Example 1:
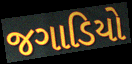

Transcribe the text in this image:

જગાડિયો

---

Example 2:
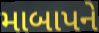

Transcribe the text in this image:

માબાપને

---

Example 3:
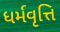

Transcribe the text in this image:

ધર્મવૃત્તિ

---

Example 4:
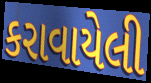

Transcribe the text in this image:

કરાવાયેલી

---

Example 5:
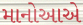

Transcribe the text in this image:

માનોઆએ